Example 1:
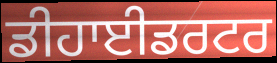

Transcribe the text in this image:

ਡੀਹਾਈਡਰਟਰ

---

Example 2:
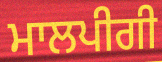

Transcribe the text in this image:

ਮਾਲਪੀਗੀ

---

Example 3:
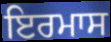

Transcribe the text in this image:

ਇਰਮਾਸ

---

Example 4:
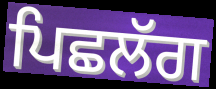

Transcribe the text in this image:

ਪਿਛਲੱਗ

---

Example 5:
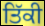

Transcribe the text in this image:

ਤਿੱਕੀ